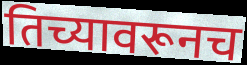
तिच्यावरूनच